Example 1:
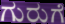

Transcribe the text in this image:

ಗುರುಗೆ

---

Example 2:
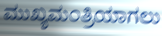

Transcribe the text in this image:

ಮುಖ್ಯಮಂತ್ರಿಯಾಗಲು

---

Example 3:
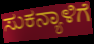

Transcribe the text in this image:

ಸುಕನ್ಯಾಳಿಗೆ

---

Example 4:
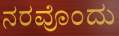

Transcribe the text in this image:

ನರವೊಂದು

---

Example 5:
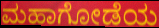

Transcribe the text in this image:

ಮಹಾಗೋಡೆಯ